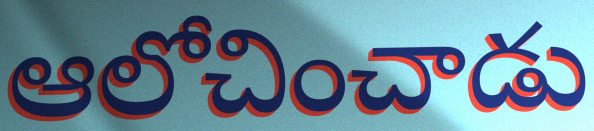
ఆలోచించాడు